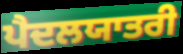
ਪੈਦਲਯਾਤਰੀ